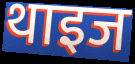
थाइज